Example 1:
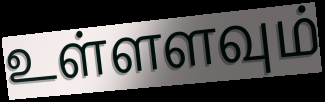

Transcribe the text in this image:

உள்ளளவும்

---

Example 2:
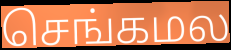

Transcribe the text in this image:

செங்கமல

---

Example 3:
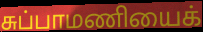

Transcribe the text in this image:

சுப்பாமணியைக்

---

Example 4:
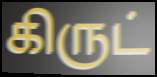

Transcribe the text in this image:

கிருட்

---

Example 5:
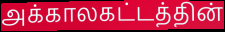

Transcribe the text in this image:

அக்காலகட்டத்தின்